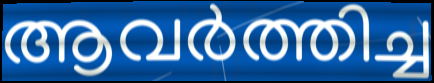
ആവർത്തിച്ച